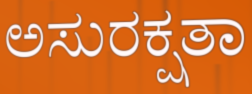
ಅಸುರಕ್ಷತಾ